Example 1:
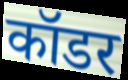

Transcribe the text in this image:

कॉडर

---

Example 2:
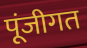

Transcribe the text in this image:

पूंजीगत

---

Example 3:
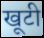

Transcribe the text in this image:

खूटी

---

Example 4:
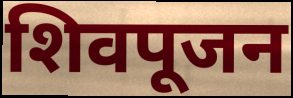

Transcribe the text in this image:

शिवपूजन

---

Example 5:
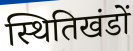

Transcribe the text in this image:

स्थितिखंडों